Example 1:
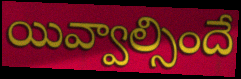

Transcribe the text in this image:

యివ్వాల్సిందే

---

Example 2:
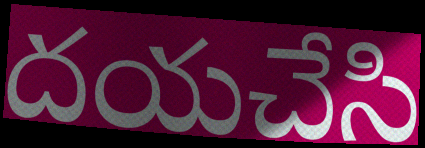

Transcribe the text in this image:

దయచేసి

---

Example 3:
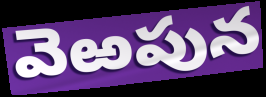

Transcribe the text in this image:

వెఱపున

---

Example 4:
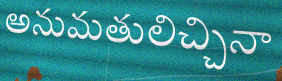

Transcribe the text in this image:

అనుమతులిచ్చినా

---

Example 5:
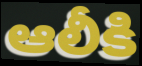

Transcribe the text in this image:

ఆలీకి